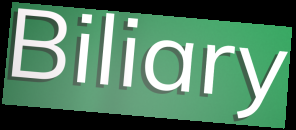
Biliary